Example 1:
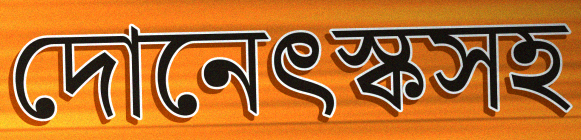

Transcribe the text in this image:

দোনেৎস্কসহ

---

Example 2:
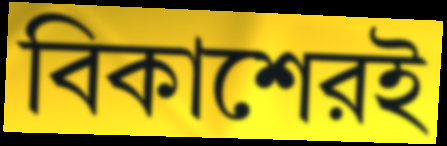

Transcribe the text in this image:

বিকাশেরই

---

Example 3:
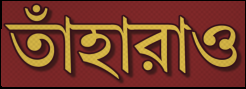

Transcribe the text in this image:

তাঁহারাও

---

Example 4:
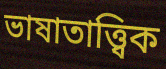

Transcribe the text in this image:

ভাষাতাত্ত্বিক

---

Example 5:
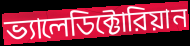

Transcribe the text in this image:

ভ্যালেডিক্টোরিয়ান